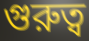
গুরুত্ব